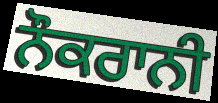
ਨੌਕਰਾਨੀ